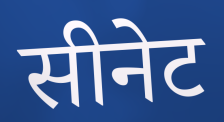
सीनेट